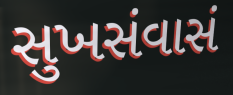
સુખસંવાસં